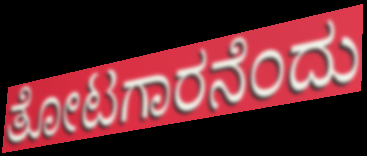
ತೋಟಗಾರನೆಂದು